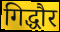
गिद्धौर